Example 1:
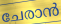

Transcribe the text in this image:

ചേരാൻ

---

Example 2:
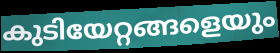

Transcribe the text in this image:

കുടിയേറ്റങ്ങളെയും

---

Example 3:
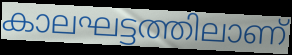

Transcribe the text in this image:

കാലഘട്ടത്തിലാണ്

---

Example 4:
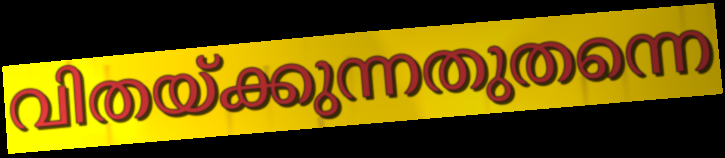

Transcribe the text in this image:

വിതയ്ക്കുന്നതുതന്നെ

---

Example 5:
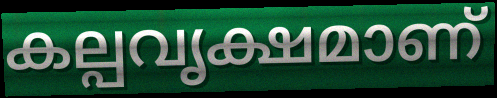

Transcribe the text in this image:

കല്പവൃക്ഷമാണ്